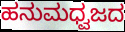
ಹನುಮಧ್ವಜದ